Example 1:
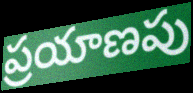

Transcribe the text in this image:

ప్రయాణపు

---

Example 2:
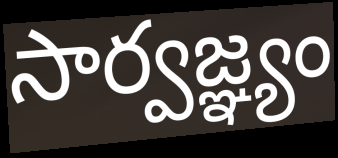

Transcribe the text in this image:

సార్వజ్ఞ్యం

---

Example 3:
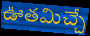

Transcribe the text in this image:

ఊతమిచ్చే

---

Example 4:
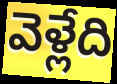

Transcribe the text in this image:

వెళ్లేది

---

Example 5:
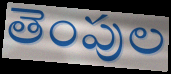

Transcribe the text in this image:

తెంపుల